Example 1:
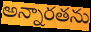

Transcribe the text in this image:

అన్నారతను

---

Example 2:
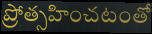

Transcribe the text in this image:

ప్రోత్సహించటంతో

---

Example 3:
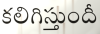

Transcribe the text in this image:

కలిగిస్తుందీ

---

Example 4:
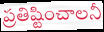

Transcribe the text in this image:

ప్రతిష్టించాలనీ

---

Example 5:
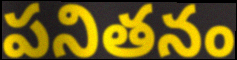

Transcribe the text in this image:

పనితనం